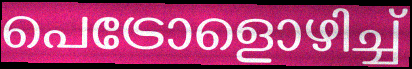
പെട്രോളൊഴിച്ച്